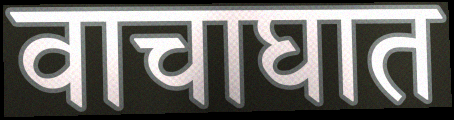
वाचाघात